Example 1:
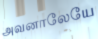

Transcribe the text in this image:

அவனாலேயே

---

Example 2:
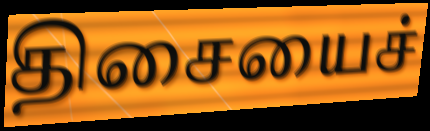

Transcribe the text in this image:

திசையைச்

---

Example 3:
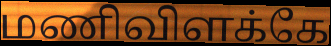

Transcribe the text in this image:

மணிவிளக்கே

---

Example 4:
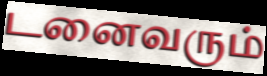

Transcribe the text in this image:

டனைவரும்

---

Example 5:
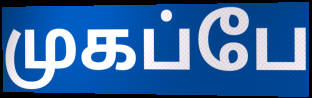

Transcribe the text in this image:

முகப்பே